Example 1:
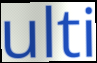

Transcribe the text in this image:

ulti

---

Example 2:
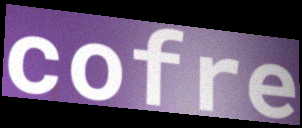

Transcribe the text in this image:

cofre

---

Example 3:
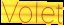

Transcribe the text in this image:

Volet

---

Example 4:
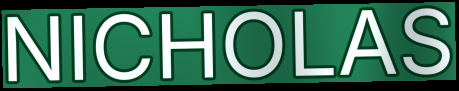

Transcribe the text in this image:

NICHOLAS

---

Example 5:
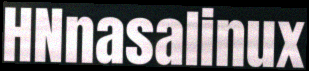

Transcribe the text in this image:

HNnasalinux